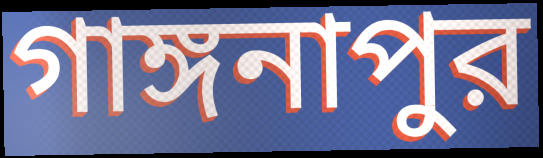
গাঙ্গনাপুর